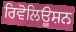
ਰਿਵੋਲਿਊਸ਼ਨ